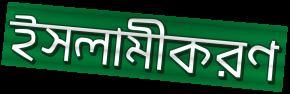
ইসলামীকরণ